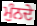
ਮੁੰਨਦੇ